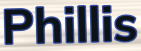
Phillis